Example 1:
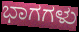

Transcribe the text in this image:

ಭಾಗಗಳು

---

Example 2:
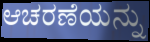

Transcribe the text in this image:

ಆಚರಣೆಯನ್ನು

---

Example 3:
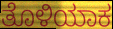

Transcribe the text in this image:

ತೊಳಿಯಾಕ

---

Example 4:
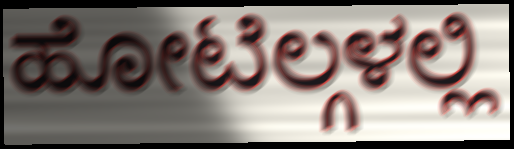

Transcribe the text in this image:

ಹೋಟೆಲ್ಗಳಲ್ಲಿ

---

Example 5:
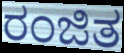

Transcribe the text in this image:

ರಂಜಿತ